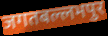
जगतबल्लभपुर